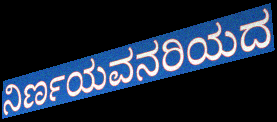
ನಿರ್ಣಯವನರಿಯದ